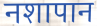
नशापान